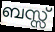
ബസ്സ്